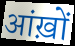
आंख़ों